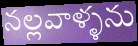
నల్లవాళ్ళను